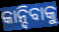
କାନ୍ଦିବାକୁ